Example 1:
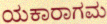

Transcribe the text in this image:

ಯಕಾರಾಗಮ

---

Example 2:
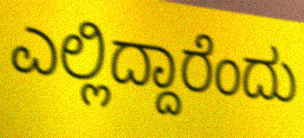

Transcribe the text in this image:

ಎಲ್ಲಿದ್ದಾರೆಂದು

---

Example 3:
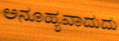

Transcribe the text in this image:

ಅನೂಹ್ಯವಾದುದು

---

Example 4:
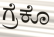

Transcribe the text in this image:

ಗ್ರೆಕೊ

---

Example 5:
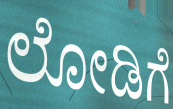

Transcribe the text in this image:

ಲೋಡಿಗೆ